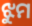
ଝୁମ